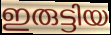
ഇരുട്ടിയ